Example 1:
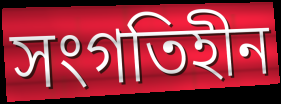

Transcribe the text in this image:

সংগতিহীন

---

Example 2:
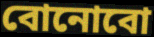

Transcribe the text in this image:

বোনোবো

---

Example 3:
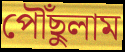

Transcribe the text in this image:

পৌঁছুলাম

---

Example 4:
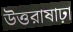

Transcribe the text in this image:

উত্তরাষাঢ়া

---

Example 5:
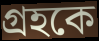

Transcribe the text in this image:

গ্রহকে